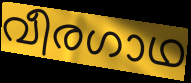
വീരഗാഥ